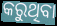
କରୁଥିବା